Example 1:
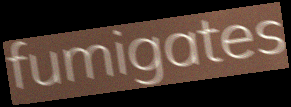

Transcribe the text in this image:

fumigates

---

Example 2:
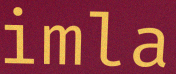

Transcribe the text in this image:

imla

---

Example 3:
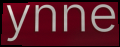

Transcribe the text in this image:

ynne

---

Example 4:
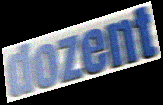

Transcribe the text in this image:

dozent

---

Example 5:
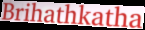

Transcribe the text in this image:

Brihathkatha